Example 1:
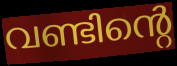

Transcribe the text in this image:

വണ്ടിന്റെ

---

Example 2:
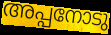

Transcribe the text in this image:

അപ്പനോടു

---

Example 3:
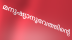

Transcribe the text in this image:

മനുഷ്യാനുഭവത്തിന്റെ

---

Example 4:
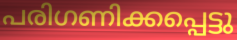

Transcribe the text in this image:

പരിഗണിക്കപ്പെട്ടു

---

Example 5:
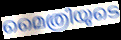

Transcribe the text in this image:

മൈത്രിയുടെ